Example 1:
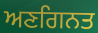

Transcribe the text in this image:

ਅਣਗਿਨਤ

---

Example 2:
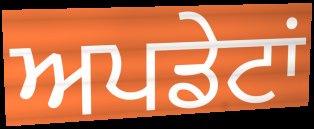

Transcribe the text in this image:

ਅਪਡੇਟਾਂ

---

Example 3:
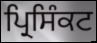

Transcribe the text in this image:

ਪ੍ਰਿਸਿੰਕਟ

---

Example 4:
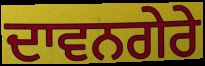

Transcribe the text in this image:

ਦਾਵਨਗੇਰੇ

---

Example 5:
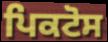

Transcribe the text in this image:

ਪਿਕਟੋਸ